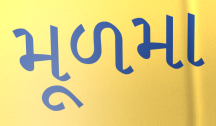
મૂળમા